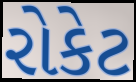
રોકેટ